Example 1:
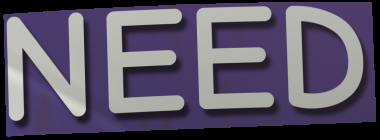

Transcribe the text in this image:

NEED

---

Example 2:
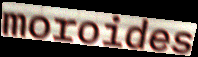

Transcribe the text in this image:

moroides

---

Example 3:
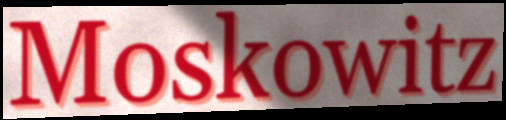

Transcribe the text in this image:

Moskowitz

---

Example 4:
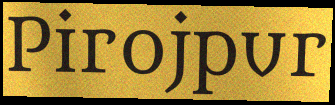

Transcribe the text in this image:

Pirojpur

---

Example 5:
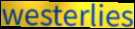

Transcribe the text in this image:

westerlies